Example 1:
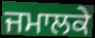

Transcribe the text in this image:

ਜਮਾਲਕੇ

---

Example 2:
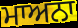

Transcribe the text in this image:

ਮਾਅਨਾ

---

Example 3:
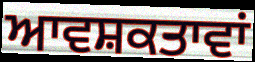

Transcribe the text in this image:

ਆਵਸ਼ਕਤਾਵਾਂ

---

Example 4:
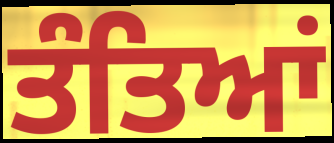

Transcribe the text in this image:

ਤੰਤਿਆਂ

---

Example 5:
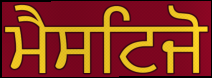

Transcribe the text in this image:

ਮੈਸਟਿਜੋ